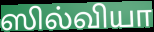
ஸில்வியா